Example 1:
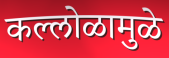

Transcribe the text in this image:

कल्लोळामुळे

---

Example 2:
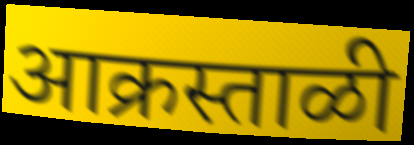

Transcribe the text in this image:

आक्रस्ताळी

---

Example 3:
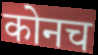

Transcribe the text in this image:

कोनच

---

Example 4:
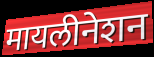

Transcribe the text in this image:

मायलीनेशन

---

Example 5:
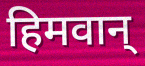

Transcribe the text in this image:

हिमवान्